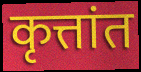
कृत्तांत